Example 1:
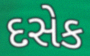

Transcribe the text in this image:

દસેક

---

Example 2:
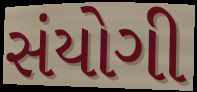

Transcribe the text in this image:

સંયોગી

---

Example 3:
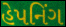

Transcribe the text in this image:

હેપનિંગ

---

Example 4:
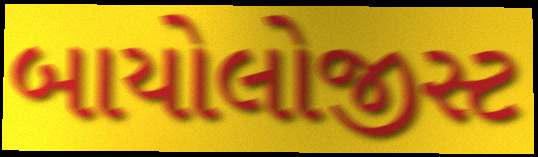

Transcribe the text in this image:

બાયોલોજીસ્ટ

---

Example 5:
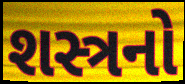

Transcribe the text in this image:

શસ્ત્રનો